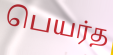
பெயர்த